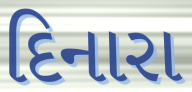
દિનારા